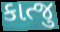
કાત્જુ